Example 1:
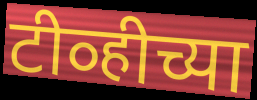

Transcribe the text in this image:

टीव्हीच्या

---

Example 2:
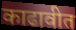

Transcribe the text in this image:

काढावीत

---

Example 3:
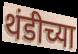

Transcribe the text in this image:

थंडीच्या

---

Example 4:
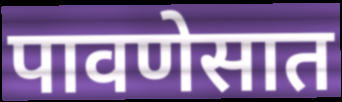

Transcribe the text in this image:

पावणेसात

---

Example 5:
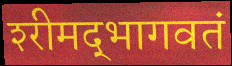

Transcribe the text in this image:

श्रीमद्‌भागवतं